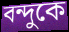
বন্দুকে